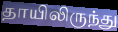
தாயிலிருந்து